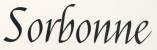
Sorbonne